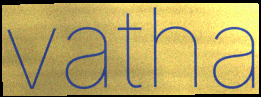
vatha